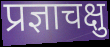
प्रज्ञाचक्षु